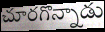
చూరగొన్నాడు